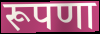
रूपणा